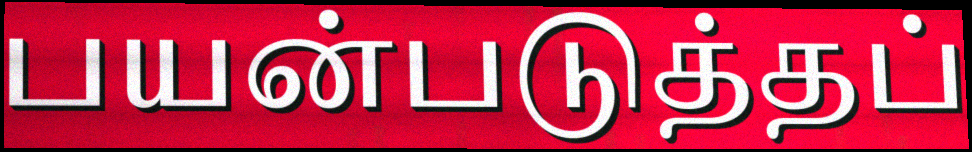
பயன்படுத்தப்